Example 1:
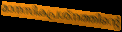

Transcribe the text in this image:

മാനസികപ്രശ്നത്തിന്റെ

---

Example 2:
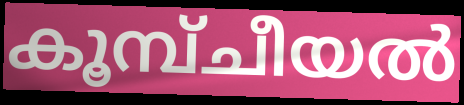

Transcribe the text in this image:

കൂമ്പ്ചീയൽ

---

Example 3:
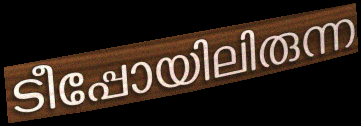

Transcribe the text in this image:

ടീപ്പോയിലിരുന്ന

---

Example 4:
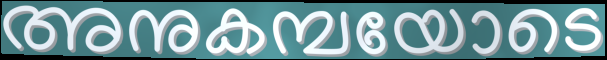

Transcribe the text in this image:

അനുകമ്പയോടെ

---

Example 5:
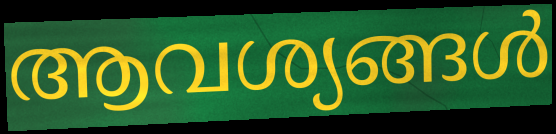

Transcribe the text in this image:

ആവശ്യങ്ങൾ